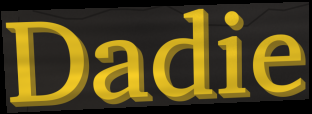
Dadie